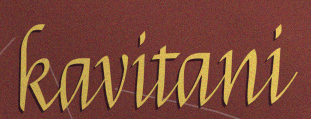
kavitani